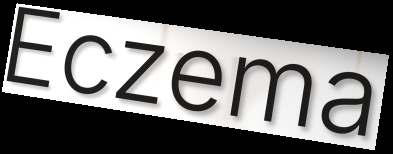
Eczema